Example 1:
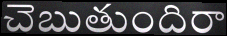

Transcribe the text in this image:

చెబుతుందిరా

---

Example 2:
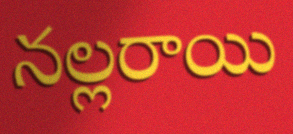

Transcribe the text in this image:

నల్లరాయి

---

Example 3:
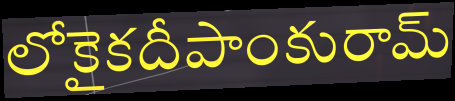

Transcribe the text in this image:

లోకైకదీపాంకురామ్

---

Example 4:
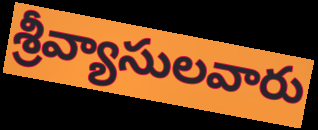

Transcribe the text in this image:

శ్రీవ్యాసులవారు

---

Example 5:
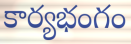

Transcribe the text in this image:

కార్యభంగం